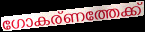
ഗോകര്ണത്തേക്ക്